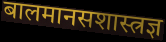
बालमानसशास्त्रज्ञ